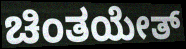
ಚಿಂತಯೇತ್